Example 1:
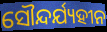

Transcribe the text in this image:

ସୌନ୍ଦର୍ଯ୍ୟହୀନ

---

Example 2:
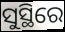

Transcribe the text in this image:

ସୁସ୍ଥିରେ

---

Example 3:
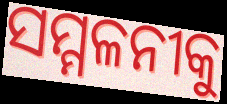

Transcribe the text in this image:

ସମ୍ମଳନୀକୁ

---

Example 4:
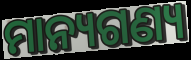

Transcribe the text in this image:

ମାନ୍ୟଗଣ୍ୟ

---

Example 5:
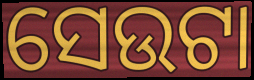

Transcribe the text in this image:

ସେଉଟା